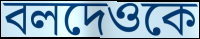
বলদেওকে